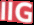
IIG